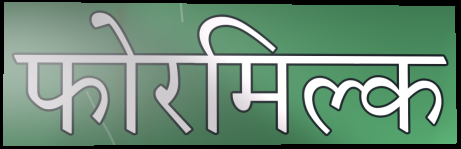
फोरमिल्क